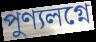
পুণ্যলগ্নে